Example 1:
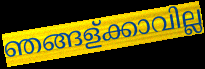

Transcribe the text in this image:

ഞങ്ങള്ക്കാവില്ല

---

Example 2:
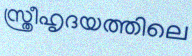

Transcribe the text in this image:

സ്ത്രീഹൃദയത്തിലെ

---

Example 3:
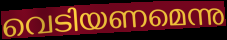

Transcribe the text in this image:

വെടിയണമെന്നു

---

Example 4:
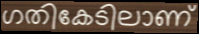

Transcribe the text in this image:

ഗതികേടിലാണ്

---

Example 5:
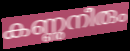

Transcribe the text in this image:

കണ്ണുനീരും